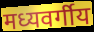
मध्यवर्गीय